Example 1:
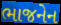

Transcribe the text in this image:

ભાજનેન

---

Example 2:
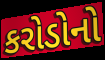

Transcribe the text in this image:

કરોડોનો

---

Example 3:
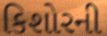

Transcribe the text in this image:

કિશોરની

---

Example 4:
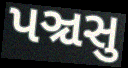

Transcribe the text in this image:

પઞ્ચસુ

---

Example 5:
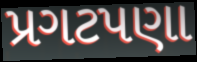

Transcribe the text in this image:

પ્રગટપણા